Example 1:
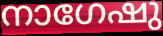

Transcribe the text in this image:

നാഗേഷു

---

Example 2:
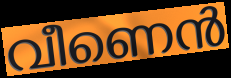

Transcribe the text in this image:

വീണെൻ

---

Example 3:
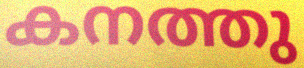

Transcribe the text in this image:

കനത്തു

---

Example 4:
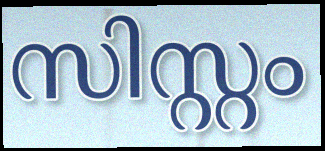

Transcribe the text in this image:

സിസ്റ്റം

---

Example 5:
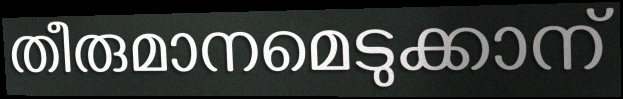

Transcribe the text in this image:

തീരുമാനമെടുക്കാന്